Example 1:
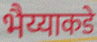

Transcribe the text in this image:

भैय्याकडे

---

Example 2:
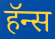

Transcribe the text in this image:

हॅन्स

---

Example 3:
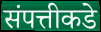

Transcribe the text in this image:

संपत्तीकडे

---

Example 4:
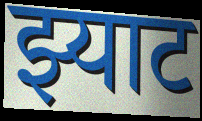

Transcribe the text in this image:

झ्याट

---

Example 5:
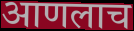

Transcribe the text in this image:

आणलाच